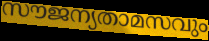
സൗജന്യതാമസവും